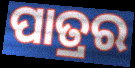
ପାତ୍ରର